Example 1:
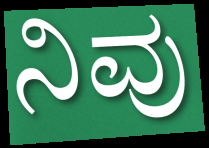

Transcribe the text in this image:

ನಿವು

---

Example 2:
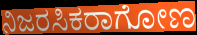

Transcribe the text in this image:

ನಿಜರಸಿಕರಾಗೋಣ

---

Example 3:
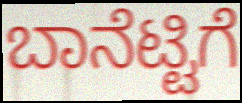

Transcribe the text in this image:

ಬಾನೆಟ್ಟಿಗೆ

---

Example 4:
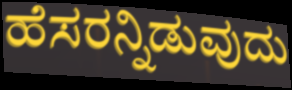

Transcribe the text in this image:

ಹೆಸರನ್ನಿಡುವುದು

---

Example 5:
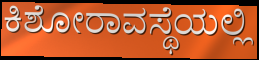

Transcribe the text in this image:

ಕಿಶೋರಾವಸ್ಥೆಯಲ್ಲಿ